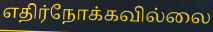
எதிர்நோக்கவில்லை